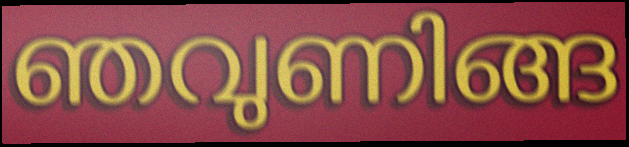
ഞവുണിങ്ങ